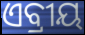
ଏବ୍ରୀୟ